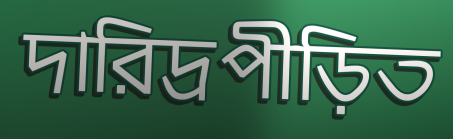
দারিদ্রপীড়িত